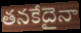
తనకేదైనా